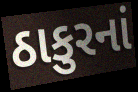
ઠાકુરનાં